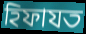
হিফাযত